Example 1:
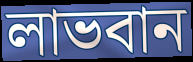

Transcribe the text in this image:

লাভবান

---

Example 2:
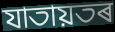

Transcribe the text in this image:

যাতায়তৰ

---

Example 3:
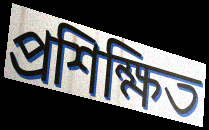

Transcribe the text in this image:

প্ৰশিক্ষিত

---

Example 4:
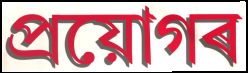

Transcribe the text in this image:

প্ৰয়োগৰ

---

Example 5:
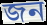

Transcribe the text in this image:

জন